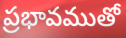
ప్రభావముతో